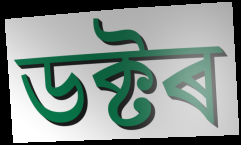
ডক্টৰ